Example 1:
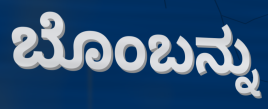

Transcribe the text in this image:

ಬೊಂಬನ್ನು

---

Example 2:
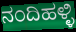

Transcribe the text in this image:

ನಂದಿಹಳ್ಳಿ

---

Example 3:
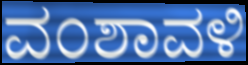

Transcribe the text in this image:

ವಂಶಾವಳಿ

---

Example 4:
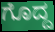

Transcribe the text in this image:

ಗೊದ್ದ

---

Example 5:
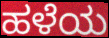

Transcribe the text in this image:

ಹಳೆಯ